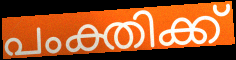
പംക്തിക്ക്